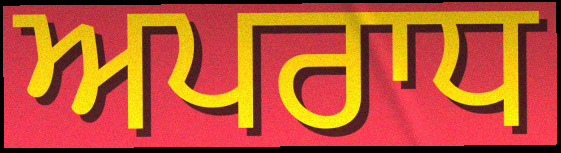
ਅਪਰਾਧ